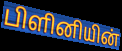
பிளினியின்